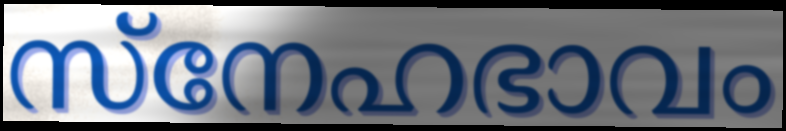
സ്നേഹഭാവം